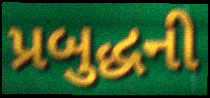
પ્રબુદ્ધની